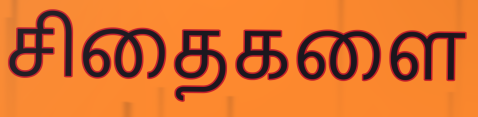
சிதைகளை